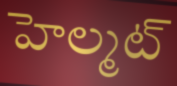
హెల్మట్